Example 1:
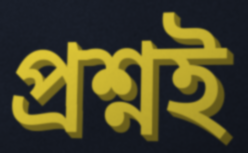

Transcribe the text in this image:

প্রশ্নই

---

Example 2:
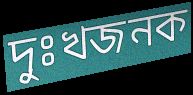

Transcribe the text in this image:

দুঃখজনক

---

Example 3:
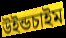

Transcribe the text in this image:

উইন্ডচাইম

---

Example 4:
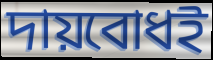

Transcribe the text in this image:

দায়বোধই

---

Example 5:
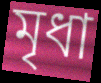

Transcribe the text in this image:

মৃধা